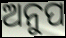
ଅନୁପ